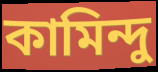
কামিন্দু